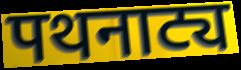
पथनाट्य